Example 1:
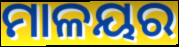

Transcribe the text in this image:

ମାଳୟର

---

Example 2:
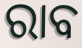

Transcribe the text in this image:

ରାବ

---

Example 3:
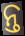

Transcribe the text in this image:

ନ୍ତ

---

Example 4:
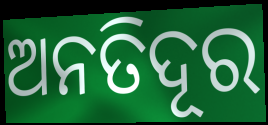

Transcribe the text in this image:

ଅନତିଦୂର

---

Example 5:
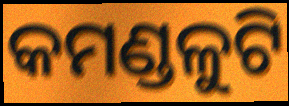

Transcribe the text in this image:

କମଣ୍ଡଳୁଟି